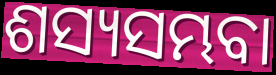
ଶସ୍ୟସମ୍ଭବା